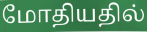
மோதியதில்